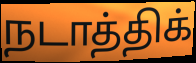
நடாத்திக்